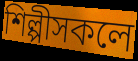
শিল্পীসকলে